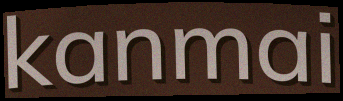
kanmai